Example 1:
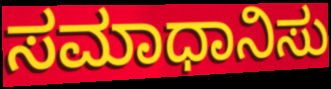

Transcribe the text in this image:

ಸಮಾಧಾನಿಸು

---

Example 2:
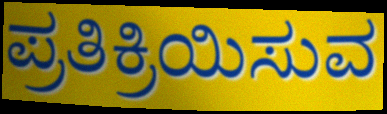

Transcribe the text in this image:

ಪ್ರತಿಕ್ರಿಯಿಸುವ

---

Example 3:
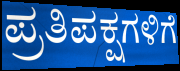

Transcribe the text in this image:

ಪ್ರತಿಪಕ್ಷಗಳಿಗೆ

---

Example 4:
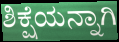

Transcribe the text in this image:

ಶಿಕ್ಷೆಯನ್ನಾಗಿ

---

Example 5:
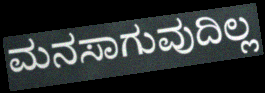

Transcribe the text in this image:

ಮನಸಾಗುವುದಿಲ್ಲ